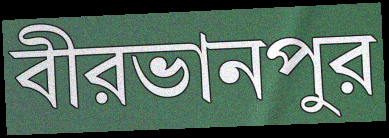
বীরভানপুর